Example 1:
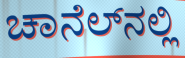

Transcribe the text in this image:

ಚಾನೆಲ್‌ನಲ್ಲಿ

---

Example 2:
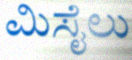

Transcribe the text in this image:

ಮಿಸೈಲು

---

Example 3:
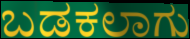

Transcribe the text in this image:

ಬಡಕಲಾಗು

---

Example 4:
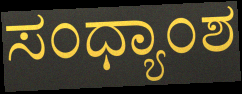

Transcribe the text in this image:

ಸಂಧ್ಯಾಂಶ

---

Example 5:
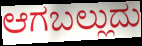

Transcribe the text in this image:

ಆಗಬಲ್ಲುದು